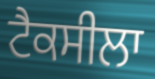
ਟੈਕਸੀਲਾ